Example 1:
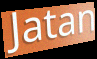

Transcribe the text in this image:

Jatan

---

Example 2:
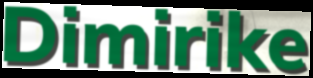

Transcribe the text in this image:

Dimirike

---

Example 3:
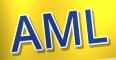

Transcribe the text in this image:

AML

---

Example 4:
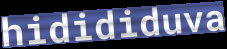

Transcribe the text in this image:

hidididuva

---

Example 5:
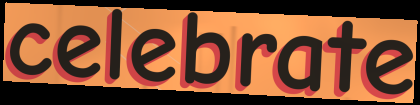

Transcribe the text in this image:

celebrate